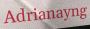
Adrianayng